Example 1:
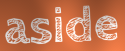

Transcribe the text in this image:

aside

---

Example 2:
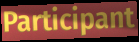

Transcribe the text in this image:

Participant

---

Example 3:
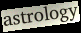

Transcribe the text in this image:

astrology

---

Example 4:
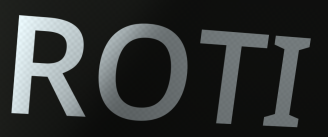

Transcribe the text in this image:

ROTI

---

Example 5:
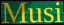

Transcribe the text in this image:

Musi